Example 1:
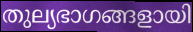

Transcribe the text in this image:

തുല്യഭാഗങ്ങളായി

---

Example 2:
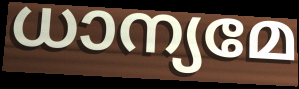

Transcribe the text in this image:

ധാന്യമേ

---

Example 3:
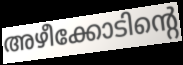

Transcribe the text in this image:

അഴീക്കോടിന്റെ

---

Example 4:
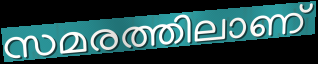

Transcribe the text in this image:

സമരത്തിലാണ്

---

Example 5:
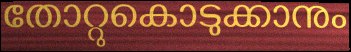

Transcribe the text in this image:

തോറ്റുകൊടുക്കാനും